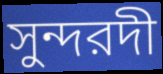
সুন্দরদী